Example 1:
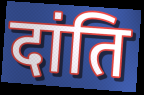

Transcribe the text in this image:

दांति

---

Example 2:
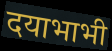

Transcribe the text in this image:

दयाभाभी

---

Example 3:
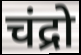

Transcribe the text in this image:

चंद्रो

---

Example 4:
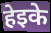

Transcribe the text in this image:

हेइके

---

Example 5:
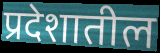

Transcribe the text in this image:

प्रदेशातील